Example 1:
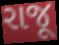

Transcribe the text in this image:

રાજૂ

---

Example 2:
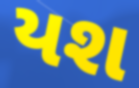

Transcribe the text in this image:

યશ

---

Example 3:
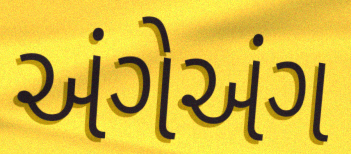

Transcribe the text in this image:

અંગેઅંગ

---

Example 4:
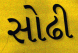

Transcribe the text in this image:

સોઢી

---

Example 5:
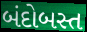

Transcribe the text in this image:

બંદોબસ્ત